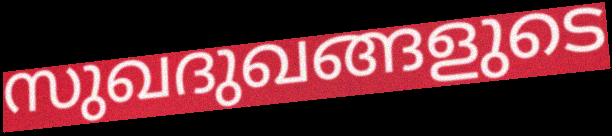
സുഖദുഖങ്ങളുടെ